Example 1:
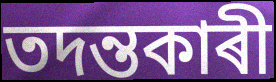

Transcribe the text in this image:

তদন্তকাৰী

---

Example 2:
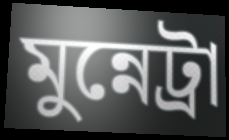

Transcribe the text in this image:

মুন্নেট্ৰা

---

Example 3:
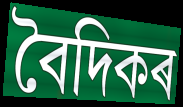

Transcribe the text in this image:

বৈদিকৰ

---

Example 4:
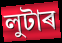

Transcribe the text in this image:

লুটাৰ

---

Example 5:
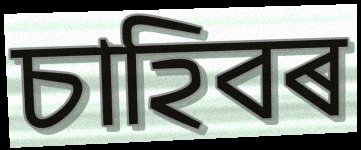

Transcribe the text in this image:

চাহিবৰ